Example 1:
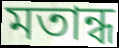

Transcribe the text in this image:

মতান্ধ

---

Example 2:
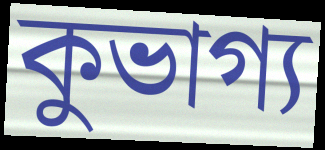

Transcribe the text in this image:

কুভাগ্য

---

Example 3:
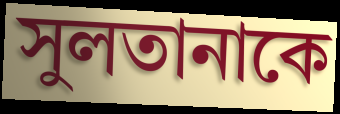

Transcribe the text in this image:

সুলতানাকে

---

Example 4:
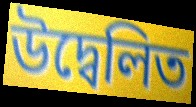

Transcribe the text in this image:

উদ্বেলিত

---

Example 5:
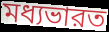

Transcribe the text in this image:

মধ্যভারত